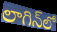
లాగిన్‌లో